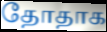
தோதாக